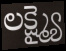
లక్ష్మ్యై